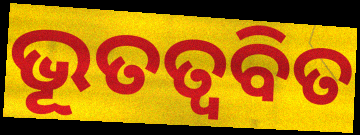
ଭୂତତ୍ଵବିତ